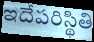
ఇదేపరిస్థితి